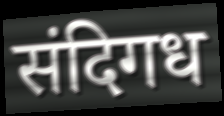
संदिगध